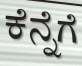
ಕೆನ್ನೆಗೆ